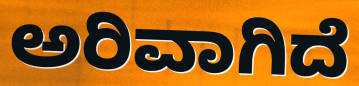
ಅರಿವಾಗಿದೆ